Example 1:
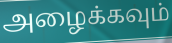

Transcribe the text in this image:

அழைக்கவும்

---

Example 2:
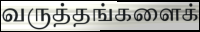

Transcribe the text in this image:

வருத்தங்களைக்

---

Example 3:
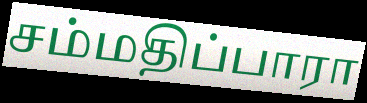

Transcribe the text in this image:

சம்மதிப்பாரா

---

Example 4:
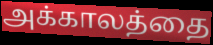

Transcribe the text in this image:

அக்காலத்தை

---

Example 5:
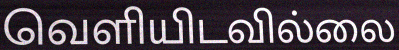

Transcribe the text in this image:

வெளியிடவில்லை